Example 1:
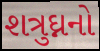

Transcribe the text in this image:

શત્રુઘ્નનો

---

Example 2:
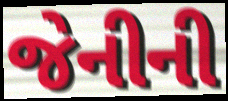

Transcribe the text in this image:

જેનીની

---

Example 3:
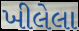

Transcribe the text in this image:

ખીલેલા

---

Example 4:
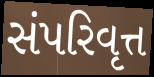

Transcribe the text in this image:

સંપરિવૃત્ત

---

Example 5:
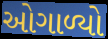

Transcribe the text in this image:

ઓગાળ્યો